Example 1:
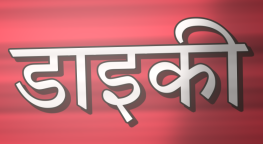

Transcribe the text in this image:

डाइकी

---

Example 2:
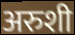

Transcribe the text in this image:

अरुशी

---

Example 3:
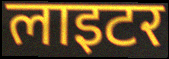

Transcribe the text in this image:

लाइटर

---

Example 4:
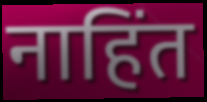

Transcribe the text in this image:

नाहिंत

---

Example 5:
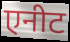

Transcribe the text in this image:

एनीट